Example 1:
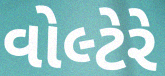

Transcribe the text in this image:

વોલ્ટેરે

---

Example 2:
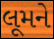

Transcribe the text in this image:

લૂમને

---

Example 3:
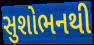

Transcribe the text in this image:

સુશોભનથી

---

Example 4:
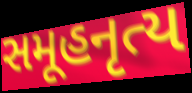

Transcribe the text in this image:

સમૂહનૃત્ય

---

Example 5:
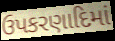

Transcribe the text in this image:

ઉપકરણાદિમાં